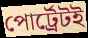
পোর্ট্রেটই